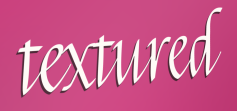
textured